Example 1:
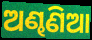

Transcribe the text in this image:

ଅଣ୍ଢଣିଆ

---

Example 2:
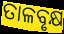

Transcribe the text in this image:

ତାଳବୃକ୍ଷ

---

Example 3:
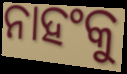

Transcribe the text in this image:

ନାହଂକୁ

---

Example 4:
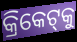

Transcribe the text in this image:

କ୍ରିକେଟ୍‌କୁ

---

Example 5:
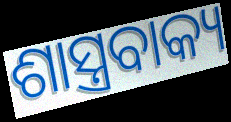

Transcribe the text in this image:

ଶାସ୍ତ୍ରବାକ୍ୟ